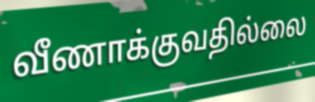
வீணாக்குவதில்லை